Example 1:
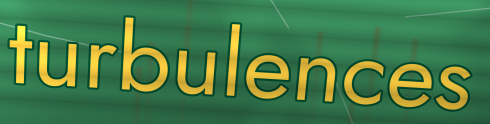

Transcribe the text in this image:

turbulences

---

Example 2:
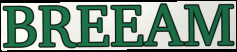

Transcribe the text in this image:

BREEAM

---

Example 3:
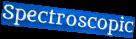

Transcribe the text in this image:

Spectroscopic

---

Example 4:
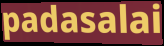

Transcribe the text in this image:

padasalai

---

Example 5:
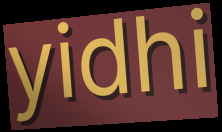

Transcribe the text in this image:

yidhi